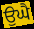
ਉਘੈ